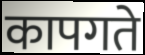
कापगते